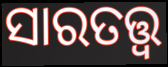
ସାରତତ୍ତ୍ଵ